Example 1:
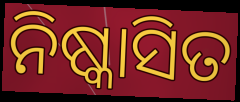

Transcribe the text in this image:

ନିଷ୍କାସିତ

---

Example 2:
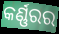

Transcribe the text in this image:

କର୍ଣ୍ଣରର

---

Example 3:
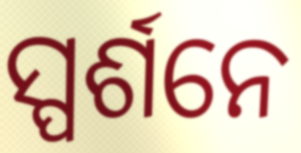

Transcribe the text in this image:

ସ୍ପର୍ଶନେ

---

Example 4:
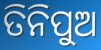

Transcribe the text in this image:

ତିନିପୁଅ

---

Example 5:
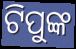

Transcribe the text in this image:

ଟିପୁଙ୍କ